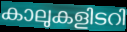
കാലുകളിടറി